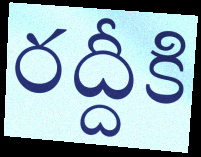
రద్దీకి